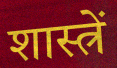
शास्त्रें